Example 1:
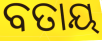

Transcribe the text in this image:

ବତାୟ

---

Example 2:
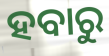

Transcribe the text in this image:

ହବାରୁ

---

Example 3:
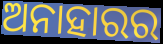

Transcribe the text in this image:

ଅନାହାରର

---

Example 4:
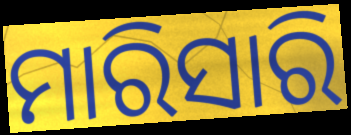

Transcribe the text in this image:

ମାରିସାରି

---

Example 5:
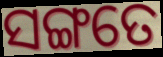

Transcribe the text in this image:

ସଙ୍ଗତେ